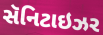
સૅનિટાઇઝર